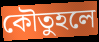
কৌতুহলে